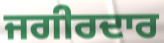
ਜਗੀਰਦਾਰ